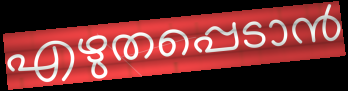
എഴുതപ്പെടാൻ